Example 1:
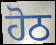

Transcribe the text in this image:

ਹੋਠ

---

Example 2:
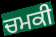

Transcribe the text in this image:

ਚਮਕੀ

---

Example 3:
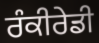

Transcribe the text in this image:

ਰੰਕੀਰੇਡੀ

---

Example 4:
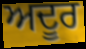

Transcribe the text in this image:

ਅਦੂਰ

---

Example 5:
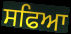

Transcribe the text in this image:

ਸਫਿਆ